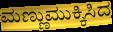
ಮಣ್ಣುಮುಕ್ಕಿಸಿದ